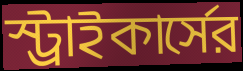
স্ট্রাইকার্সের